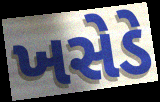
ખસેડે